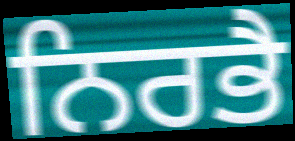
ਨਿਰਭੈ